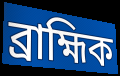
ব্ৰাহ্মিক